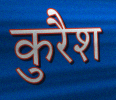
कुरैश